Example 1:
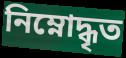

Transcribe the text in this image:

নিম্নোদ্ধৃত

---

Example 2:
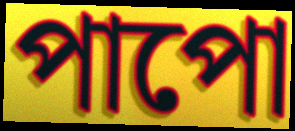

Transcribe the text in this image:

পাপো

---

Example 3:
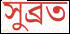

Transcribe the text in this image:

সুব্রত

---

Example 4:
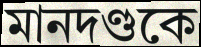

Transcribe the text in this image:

মানদণ্ডকে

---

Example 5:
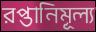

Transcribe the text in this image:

রপ্তানিমূল্য